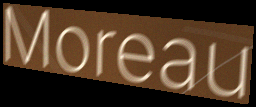
Moreau